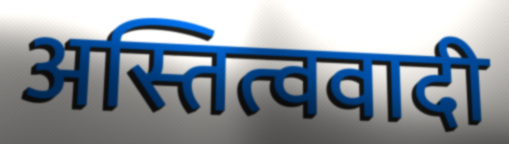
अस्तित्ववादी